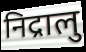
निद्रालु